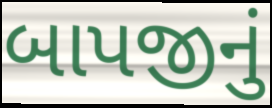
બાપજીનું